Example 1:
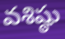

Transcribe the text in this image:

వశిష్ఠు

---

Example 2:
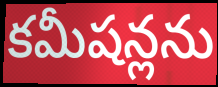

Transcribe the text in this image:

కమీషన్లను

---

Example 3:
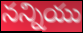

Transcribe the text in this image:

నన్నియు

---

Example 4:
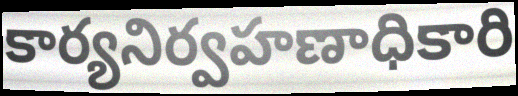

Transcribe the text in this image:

కార్యనిర్వహణాధికారి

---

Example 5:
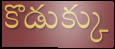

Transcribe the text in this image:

కొడుక్కు